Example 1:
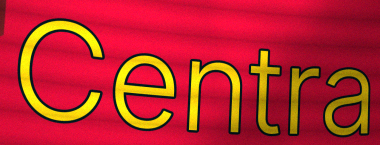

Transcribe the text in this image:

Centra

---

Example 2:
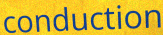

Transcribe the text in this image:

conduction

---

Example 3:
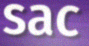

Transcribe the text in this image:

sac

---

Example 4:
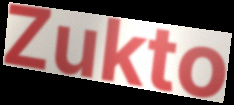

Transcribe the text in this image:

Zukto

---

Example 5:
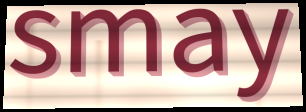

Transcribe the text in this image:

smay